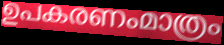
ഉപകരണംമാത്രം